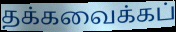
தக்கவைக்கப்